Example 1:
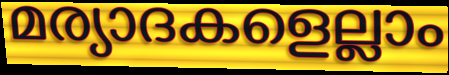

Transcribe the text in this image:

മര്യാദകളെല്ലാം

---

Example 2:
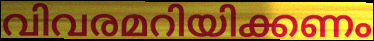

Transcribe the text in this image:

വിവരമറിയിക്കണം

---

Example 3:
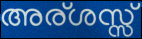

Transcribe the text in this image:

അര്ശസ്സ്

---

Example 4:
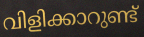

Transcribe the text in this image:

വിളിക്കാറുണ്ട്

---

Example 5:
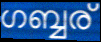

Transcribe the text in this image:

ഗബ്ബര്